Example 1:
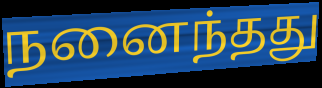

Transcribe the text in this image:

நனைந்தது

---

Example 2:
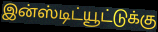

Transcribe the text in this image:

இன்ஸ்டிட்யூட்டுக்கு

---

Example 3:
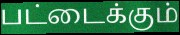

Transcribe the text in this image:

பட்டைக்கும்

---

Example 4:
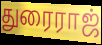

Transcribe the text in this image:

துரைராஜ்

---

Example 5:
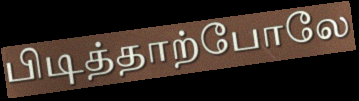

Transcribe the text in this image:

பிடித்தாற்போலே